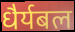
धैर्यबल